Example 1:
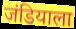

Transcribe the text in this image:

जंडियाला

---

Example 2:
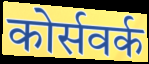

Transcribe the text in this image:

कोर्सवर्क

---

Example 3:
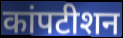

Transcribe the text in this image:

कांपटीशन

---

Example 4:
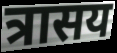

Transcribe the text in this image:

त्रासय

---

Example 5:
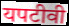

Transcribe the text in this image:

यपटीवी